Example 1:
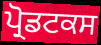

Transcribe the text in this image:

ਪ੍ਰੋਡਟਕਸ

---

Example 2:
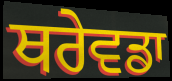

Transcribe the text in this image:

ਥਰੇਵਡਾ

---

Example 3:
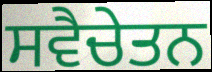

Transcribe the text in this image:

ਸਵੈਚੇਤਨ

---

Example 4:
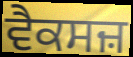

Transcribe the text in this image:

ਵੈਕਸਜ਼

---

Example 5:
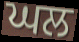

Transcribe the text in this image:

ਘਲ